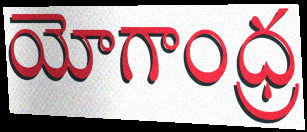
యోగాంధ్ర